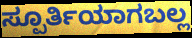
ಸ್ಪೂರ್ತಿಯಾಗಬಲ್ಲ